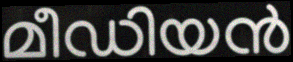
മീഡിയൻ